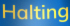
Halting